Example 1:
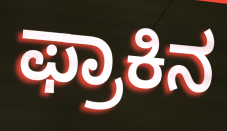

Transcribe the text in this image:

ಫ್ರಾಕಿನ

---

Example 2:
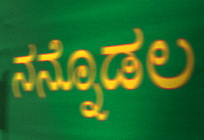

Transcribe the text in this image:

ನನ್ನೊಡಲ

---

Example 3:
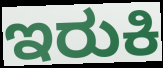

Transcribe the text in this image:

ಇರುಕಿ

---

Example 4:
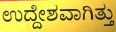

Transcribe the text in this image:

ಉದ್ದೇಶವಾಗಿತ್ತು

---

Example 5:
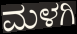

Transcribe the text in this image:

ಮಳಗಿ